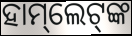
ହାମ୍‌ଲେଟ୍‌ଙ୍କ